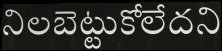
నిలబెట్టుకోలేదని